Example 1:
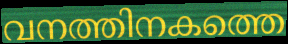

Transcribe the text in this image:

വനത്തിനകത്തെ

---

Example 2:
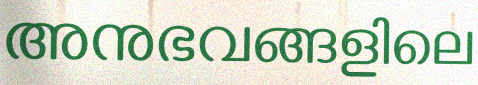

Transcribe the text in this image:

അനുഭവങ്ങളിലെ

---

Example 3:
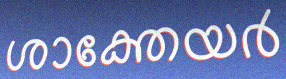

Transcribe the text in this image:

ശാക്തേയർ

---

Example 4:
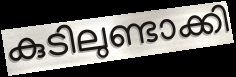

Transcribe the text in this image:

കുടിലുണ്ടാക്കി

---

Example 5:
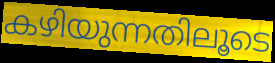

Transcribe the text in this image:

കഴിയുന്നതിലൂടെ